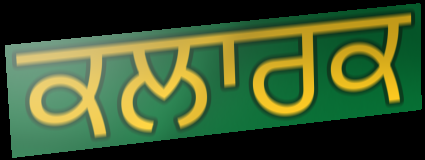
ਕਲਾਰਕ